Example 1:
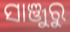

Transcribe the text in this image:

ସାଞ୍ଜୁରୁ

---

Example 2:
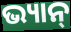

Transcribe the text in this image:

ଭ୍ୟାନ୍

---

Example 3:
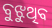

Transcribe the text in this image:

ବୁଝୁଥିବ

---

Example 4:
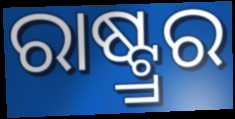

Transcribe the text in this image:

ରାଷ୍ଟ୍ର୍ରର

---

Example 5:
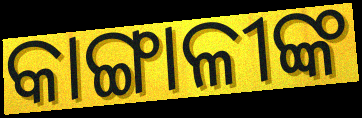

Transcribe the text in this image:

କାଙ୍ଗାଳୀଙ୍କ